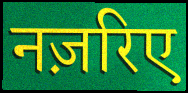
नज़रिए